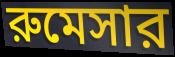
রুমেসার